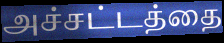
அச்சட்டத்தை